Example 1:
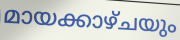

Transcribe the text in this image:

മായക്കാഴ്ചയും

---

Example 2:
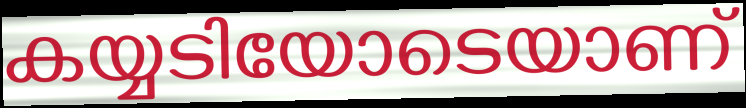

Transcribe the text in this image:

കയ്യടിയോടെയാണ്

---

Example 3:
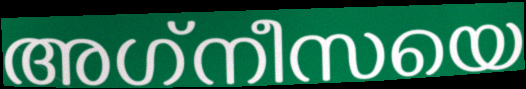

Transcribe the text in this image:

അഗ്‌നീസയെ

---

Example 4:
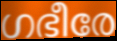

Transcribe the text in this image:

ഗഭീരേ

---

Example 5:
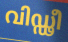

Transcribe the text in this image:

വിഡ്ഢീ